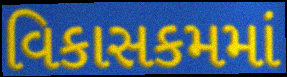
વિકાસકમમાં